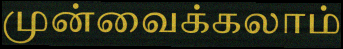
முன்வைக்கலாம்